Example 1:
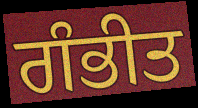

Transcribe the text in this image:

ਗੰਭੀਤ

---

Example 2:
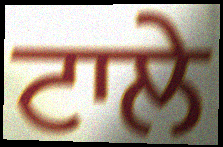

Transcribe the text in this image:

ਟਾਲੇ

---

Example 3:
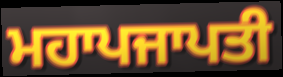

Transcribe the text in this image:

ਮਹਾਪਜਾਪਤੀ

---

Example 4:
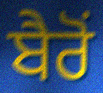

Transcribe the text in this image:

ਬੈਰੋਂ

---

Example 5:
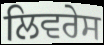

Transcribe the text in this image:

ਲਿਵਰੇਸ